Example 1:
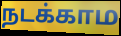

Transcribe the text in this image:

நடக்காம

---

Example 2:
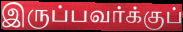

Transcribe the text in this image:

இருப்பவர்க்குப்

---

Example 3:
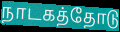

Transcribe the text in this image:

நாடகத்தோடு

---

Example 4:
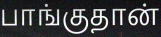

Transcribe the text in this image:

பாங்குதான்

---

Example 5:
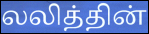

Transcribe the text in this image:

லலித்தின்